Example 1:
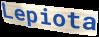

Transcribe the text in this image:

Lepiota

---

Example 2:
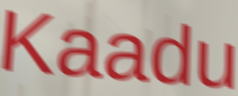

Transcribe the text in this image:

Kaadu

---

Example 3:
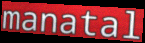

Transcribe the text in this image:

manatal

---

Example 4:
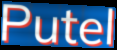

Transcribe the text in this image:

Putel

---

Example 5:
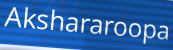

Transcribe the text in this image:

Akshararoopa